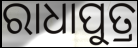
ରାଧାପୁତ୍ର